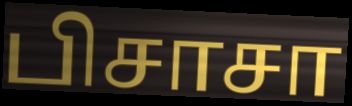
பிசாசா